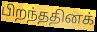
பிறந்ததினக்